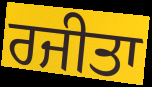
ਰਜੀਤਾ